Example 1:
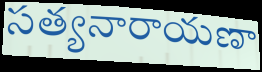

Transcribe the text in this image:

సత్యనారాయణా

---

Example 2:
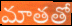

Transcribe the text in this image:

మాతతో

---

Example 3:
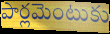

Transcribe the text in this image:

పార్లమెంటుకు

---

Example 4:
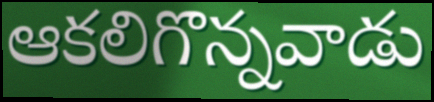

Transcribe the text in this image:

ఆకలిగొన్నవాడు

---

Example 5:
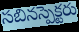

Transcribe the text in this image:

సబినస్పెక్టరు